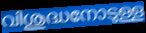
വിശുദ്ധനോടുള്ള